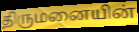
திருமனையின்